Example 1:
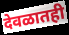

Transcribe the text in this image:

देवळातही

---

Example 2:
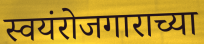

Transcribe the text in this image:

स्वयंरोजगाराच्या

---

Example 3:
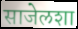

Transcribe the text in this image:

साजेलशा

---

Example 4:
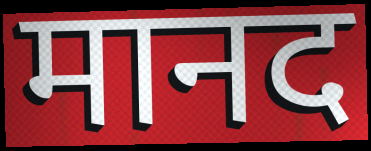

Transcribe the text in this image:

मानद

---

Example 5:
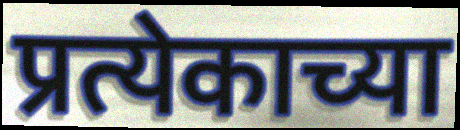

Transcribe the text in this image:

प्रत्येकाच्या